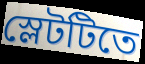
স্লেটটিতে